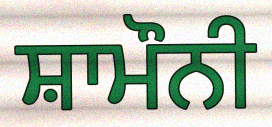
ਸ਼ਾਮੌਨੀ